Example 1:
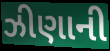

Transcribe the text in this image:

ઝીણાની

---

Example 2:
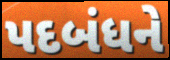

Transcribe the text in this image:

પદબંધને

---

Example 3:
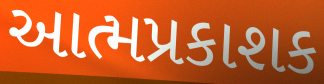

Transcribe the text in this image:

આત્મપ્રકાશક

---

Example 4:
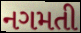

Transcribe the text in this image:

નગમતી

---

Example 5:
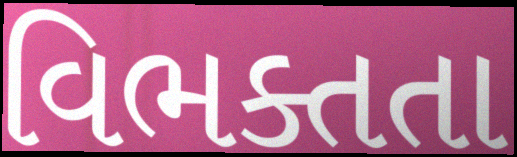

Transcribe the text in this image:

વિભક્તતા